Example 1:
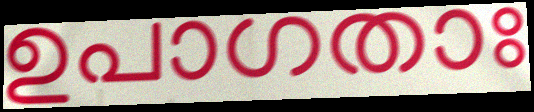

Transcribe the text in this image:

ഉപാഗതാഃ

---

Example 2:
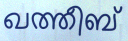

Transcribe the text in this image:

ഖത്തീബ്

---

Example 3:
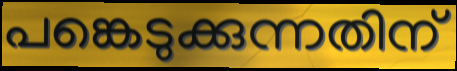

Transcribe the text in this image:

പങ്കെടുക്കുന്നതിന്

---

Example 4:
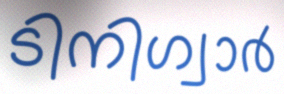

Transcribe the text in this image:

ടിനിഗ്വാർ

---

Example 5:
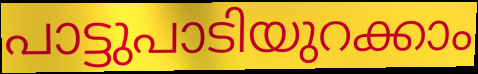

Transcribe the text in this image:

പാട്ടുപാടിയുറക്കാം